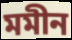
মমীন